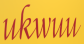
ukwuu